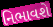
નિભાવશે